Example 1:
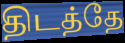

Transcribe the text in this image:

திடத்தே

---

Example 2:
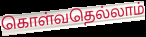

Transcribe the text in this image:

கொள்வதெல்லாம்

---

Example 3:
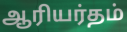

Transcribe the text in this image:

ஆரியர்தம்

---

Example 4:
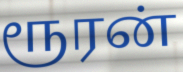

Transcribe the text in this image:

ரூரன்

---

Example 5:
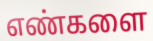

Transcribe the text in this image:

எண்களை